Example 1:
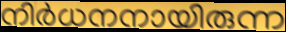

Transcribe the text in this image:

നിർധനനായിരുന്ന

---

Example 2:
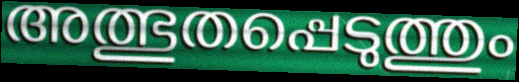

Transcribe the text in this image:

അത്ഭുതപ്പെടുത്തും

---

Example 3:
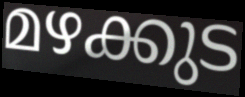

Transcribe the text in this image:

മഴക്കുട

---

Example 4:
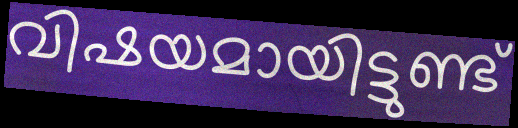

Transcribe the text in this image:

വിഷയമായിട്ടുണ്ട്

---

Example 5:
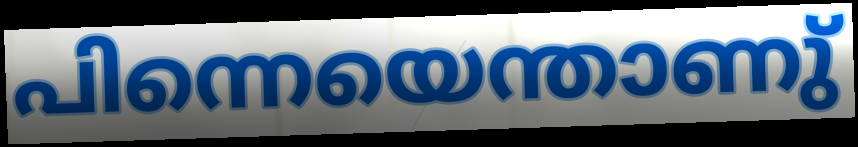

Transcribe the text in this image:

പിന്നെയെന്താണു്